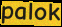
palok